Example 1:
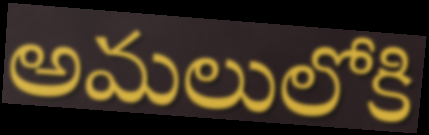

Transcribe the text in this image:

అమలులోకి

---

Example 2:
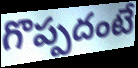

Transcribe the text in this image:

గొప్పదంటే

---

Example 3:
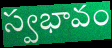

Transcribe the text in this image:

స్వభావం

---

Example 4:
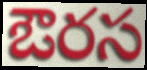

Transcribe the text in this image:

ఔరస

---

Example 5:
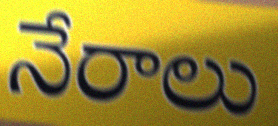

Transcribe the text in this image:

నేరాలు